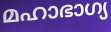
മഹാഭാഗ്യ